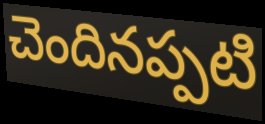
చెందినప్పటి